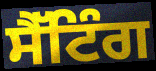
ਸੈੱਟਿੰਗ